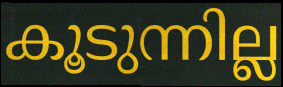
കൂടുന്നില്ല